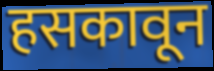
हसकावून